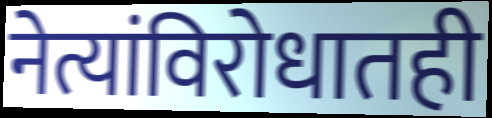
नेत्यांविरोधातही